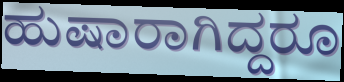
ಹುಷಾರಾಗಿದ್ದರೂ